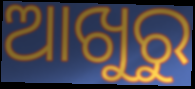
ଆଖୁରୁ